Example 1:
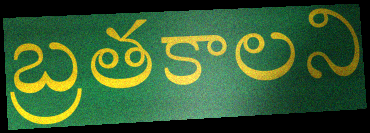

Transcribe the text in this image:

బ్రతకాలని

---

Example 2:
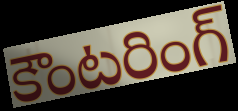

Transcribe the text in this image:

కౌంటరింగ్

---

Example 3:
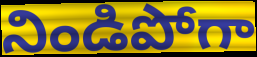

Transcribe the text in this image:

నిండిపోగా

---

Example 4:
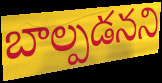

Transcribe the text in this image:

బాల్పడనని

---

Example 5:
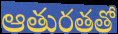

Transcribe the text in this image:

ఆతురతతో